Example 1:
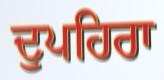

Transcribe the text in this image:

ਦੁਪਹਿਰਾ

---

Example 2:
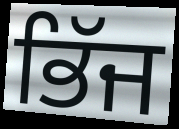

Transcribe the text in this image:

ਭਿੱਜ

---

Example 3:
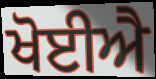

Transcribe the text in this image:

ਖੋਈਐ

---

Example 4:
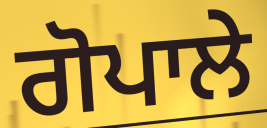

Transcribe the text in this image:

ਗੋਪਾਲੇ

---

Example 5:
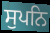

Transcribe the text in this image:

ਸੁਪਨਿ